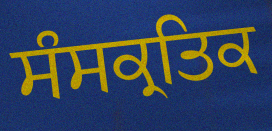
ਸੰਸਕ੍ਰਤਿਕ